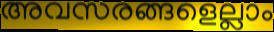
അവസരങ്ങളെല്ലാം